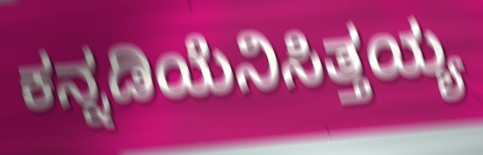
ಕನ್ನಡಿಯೆನಿಸಿತ್ತಯ್ಯ